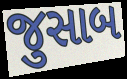
જુસાબ